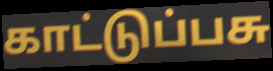
காட்டுப்பசு